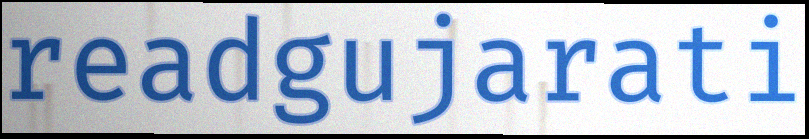
readgujarati